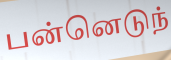
பன்னெடுந்